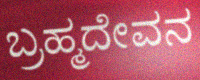
ಬ್ರಹ್ಮದೇವನ